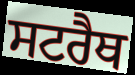
ਸਟਰੈਥ